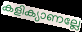
കളിക്യാണല്ലേ